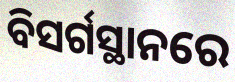
ବିସର୍ଗସ୍ଥାନରେ